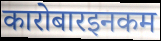
कारोबारइनकम